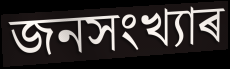
জনসংখ্যাৰ